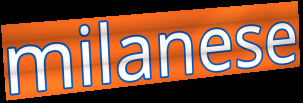
milanese